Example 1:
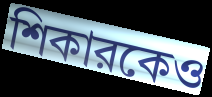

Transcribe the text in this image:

শিকারকেও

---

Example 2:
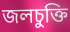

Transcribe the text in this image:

জলচুক্তি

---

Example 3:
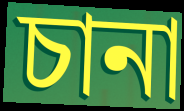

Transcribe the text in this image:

চানা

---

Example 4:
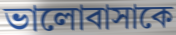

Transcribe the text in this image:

ভালোবাসাকে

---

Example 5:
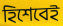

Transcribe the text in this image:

হিশেবেই